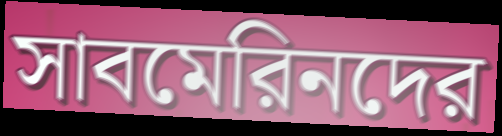
সাবমেরিনদের